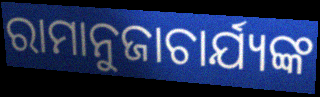
ରାମାନୁଜାଚାର୍ଯ୍ୟଙ୍କ